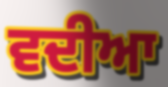
ਵਦੀਆ